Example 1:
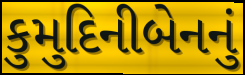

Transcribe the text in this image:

કુમુદિનીબેનનું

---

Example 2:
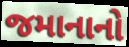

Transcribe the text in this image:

જમાનાનો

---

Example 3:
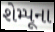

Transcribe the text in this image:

શેમ્પૂના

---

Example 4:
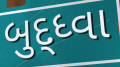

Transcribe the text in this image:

બુદ્ધ્વા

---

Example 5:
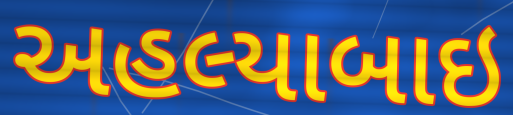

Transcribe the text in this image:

અહલ્યાબાઇ